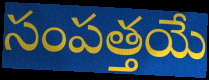
సంపత్తయే